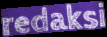
redaksi